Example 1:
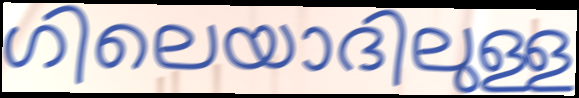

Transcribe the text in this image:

ഗിലെയാദിലുള്ള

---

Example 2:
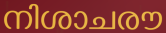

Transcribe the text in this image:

നിശാചരൗ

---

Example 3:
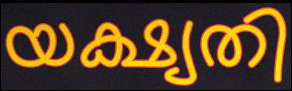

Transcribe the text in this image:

യക്ഷ്യതി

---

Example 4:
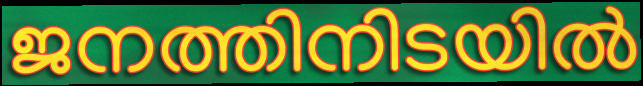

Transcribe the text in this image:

ജനത്തിനിടയിൽ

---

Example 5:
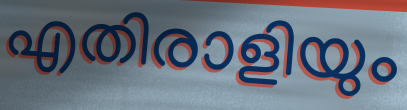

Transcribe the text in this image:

എതിരാളിയും